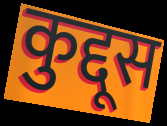
कुद्दूस